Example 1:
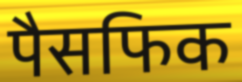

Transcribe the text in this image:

पैसफिक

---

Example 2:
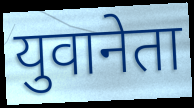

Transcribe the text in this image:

युवानेता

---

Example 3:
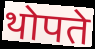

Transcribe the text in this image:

थोपते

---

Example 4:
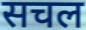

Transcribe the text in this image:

सचल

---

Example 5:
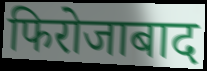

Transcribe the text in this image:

फिरोजाबाद